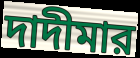
দাদীমার